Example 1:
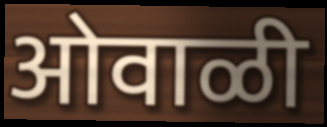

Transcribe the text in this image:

ओवाळी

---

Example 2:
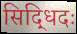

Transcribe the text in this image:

सिद्धिदः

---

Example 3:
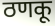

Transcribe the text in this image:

ठणकू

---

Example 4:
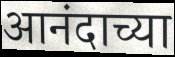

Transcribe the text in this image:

आनंदाच्या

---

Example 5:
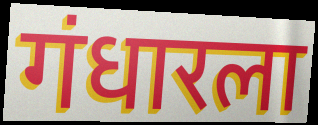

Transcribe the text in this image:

गंधारला